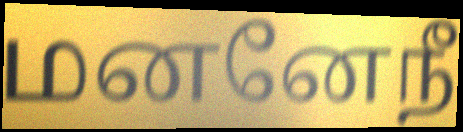
மனனேநீ